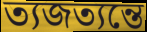
ত্যজত্যন্তে